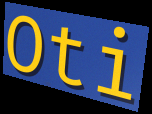
Oti